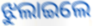
ଝୁଲାଇଲେ